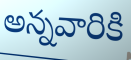
అన్నవారికి